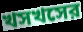
খসখসের